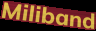
Miliband